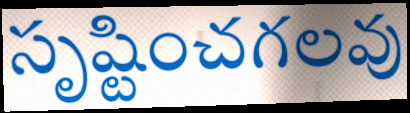
సృష్టించగలవు